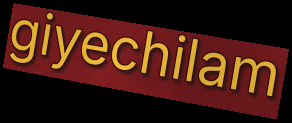
giyechilam